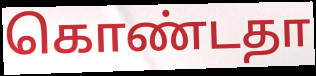
கொண்டதா